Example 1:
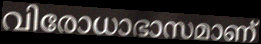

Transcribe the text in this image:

വിരോധാഭാസമാണ്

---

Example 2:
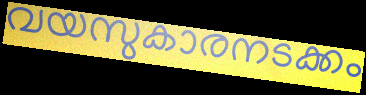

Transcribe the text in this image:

വയസുകാരനടക്കം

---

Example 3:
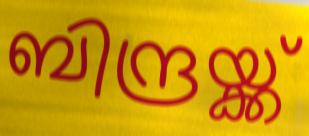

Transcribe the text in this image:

ബിന്ദ്രയ്ക്ക്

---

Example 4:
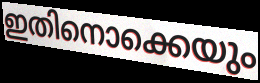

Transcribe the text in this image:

ഇതിനൊക്കെയും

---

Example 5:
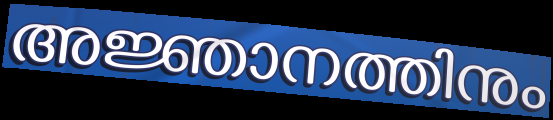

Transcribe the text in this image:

അജ്ഞാനത്തിനും